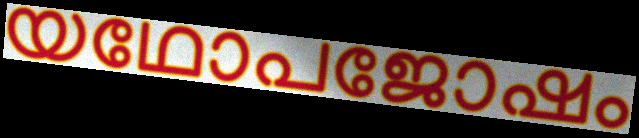
യഥോപജോഷം